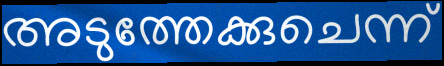
അടുത്തേക്കുചെന്ന്